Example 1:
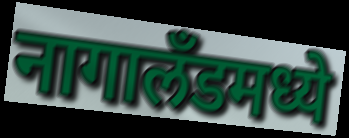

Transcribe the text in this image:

नागालॅंडमध्ये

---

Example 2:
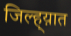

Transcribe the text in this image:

जिल्ह्य़ात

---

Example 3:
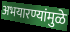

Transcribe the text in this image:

अभयारण्यांमुळे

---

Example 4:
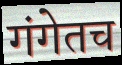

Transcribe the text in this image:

गंगेतच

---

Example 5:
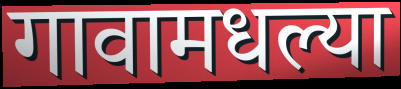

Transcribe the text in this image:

गावामधल्या